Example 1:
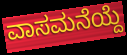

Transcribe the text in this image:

ವಾಸಮನೆಯ್ದೆ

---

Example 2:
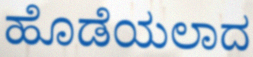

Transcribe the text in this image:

ಹೊಡೆಯಲಾದ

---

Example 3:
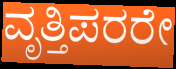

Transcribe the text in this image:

ವೃತ್ತಿಪರರೇ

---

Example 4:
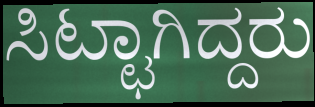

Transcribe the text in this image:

ಸಿಟ್ಟಾಗಿದ್ದರು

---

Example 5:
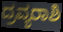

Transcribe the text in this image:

ದ್ರವ್ಯರಾಶಿ